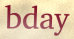
bday